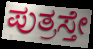
ಪುತ್ರಸ್ತೇ